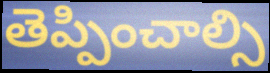
తెప్పించాల్సి